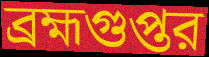
ব্রহ্মগুপ্তর